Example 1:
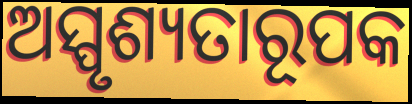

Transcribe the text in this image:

ଅସ୍ପୃଶ୍ୟତାରୂପକ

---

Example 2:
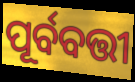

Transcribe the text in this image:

ପୂର୍ବବତ୍ତୀ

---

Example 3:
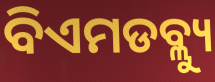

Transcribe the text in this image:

ବିଏମଡବ୍ଲ୍ୟୁ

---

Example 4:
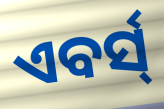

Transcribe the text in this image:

ଏବର୍ସ୍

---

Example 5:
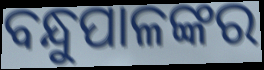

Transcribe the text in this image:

ବନ୍ଧୁପାଳଙ୍କର